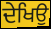
ਦੇਖਿਉ